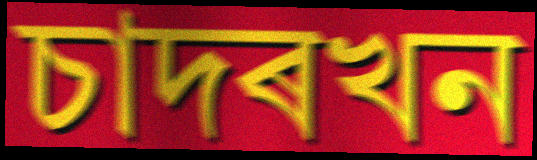
চাদৰখন